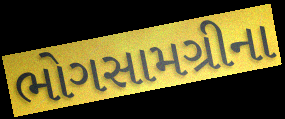
ભોગસામગ્રીના